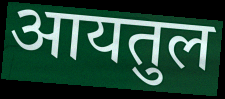
आयतुल